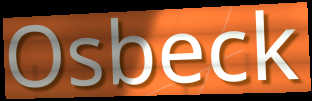
Osbeck